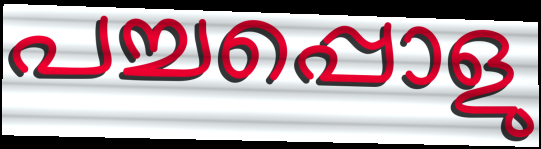
പച്ചപ്പൊളു